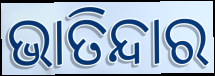
ଭାତିନ୍ଦାର